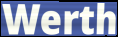
Werth